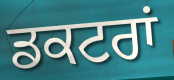
ਡਕਟਰਾਂ